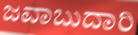
ಜವಾಬುದಾರಿ